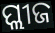
ପ୍ଲୀଜ